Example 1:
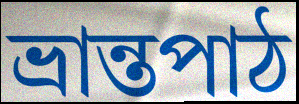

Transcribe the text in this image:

ভ্ৰান্তপাঠ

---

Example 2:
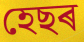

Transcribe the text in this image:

হেছৰ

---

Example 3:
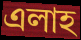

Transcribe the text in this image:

এলাহ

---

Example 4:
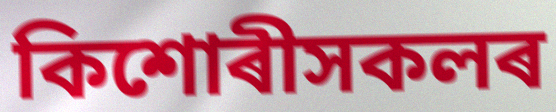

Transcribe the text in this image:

কিশোৰীসকলৰ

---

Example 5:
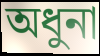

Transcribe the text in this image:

অধুনা